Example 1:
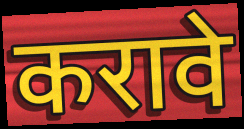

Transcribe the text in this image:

करावे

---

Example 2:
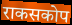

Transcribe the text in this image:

राकसकोप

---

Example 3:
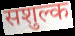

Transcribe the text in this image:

सशुल्क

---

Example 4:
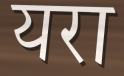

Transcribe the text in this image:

यरा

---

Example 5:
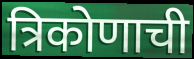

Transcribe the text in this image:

त्रिकोणाची